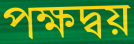
পক্ষদ্বয়